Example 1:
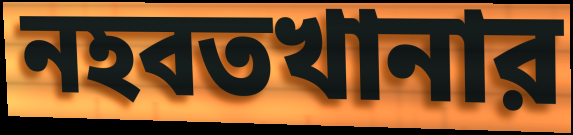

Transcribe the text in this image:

নহবতখানার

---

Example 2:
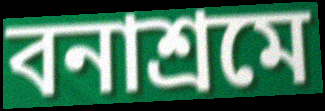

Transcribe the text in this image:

বনাশ্রমে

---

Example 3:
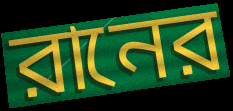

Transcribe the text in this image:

রানের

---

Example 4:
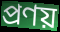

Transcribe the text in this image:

প্রণয়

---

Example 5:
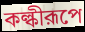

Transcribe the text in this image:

কল্কীরূপে